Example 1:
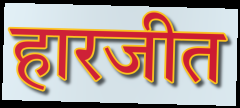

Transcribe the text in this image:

हारजीत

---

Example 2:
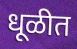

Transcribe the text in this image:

धूळीत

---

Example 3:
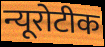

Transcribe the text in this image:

न्यूरोटीक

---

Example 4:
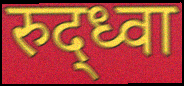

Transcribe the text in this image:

रुद्ध्वा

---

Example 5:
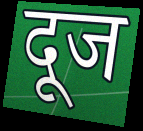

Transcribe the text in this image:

दूज